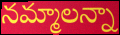
నమ్మాలన్నా